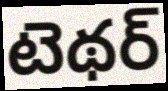
టెథర్